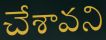
చేశావని